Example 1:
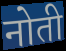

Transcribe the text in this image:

नोती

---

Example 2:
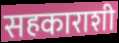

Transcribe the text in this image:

सहकाराशी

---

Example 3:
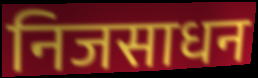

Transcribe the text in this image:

निजसाधन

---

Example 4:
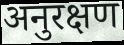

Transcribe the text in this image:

अनुरक्षण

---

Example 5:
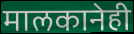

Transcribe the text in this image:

मालकानेही